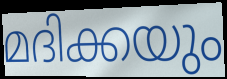
മദിക്കയും